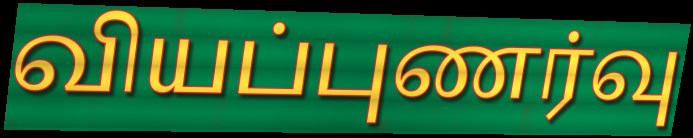
வியப்புணர்வு